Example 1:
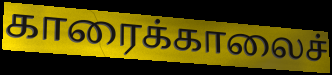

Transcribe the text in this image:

காரைக்காலைச்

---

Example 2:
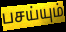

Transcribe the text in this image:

பசய்யும்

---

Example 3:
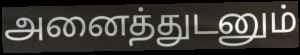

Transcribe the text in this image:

அனைத்துடனும்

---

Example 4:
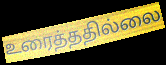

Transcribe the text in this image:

உரைத்ததில்லை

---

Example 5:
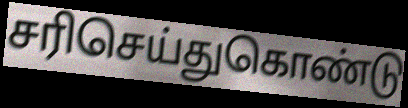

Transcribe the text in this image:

சரிசெய்துகொண்டு